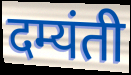
दम्यंती